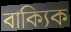
বাক্যিক